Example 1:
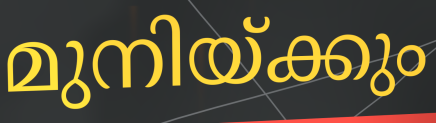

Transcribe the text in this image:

മുനിയ്ക്കും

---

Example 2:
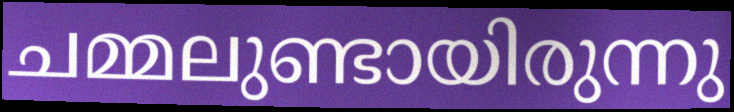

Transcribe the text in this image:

ചമ്മലുണ്ടായിരുന്നു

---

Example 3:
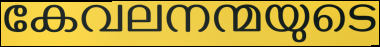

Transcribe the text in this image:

കേവലനന്മയുടെ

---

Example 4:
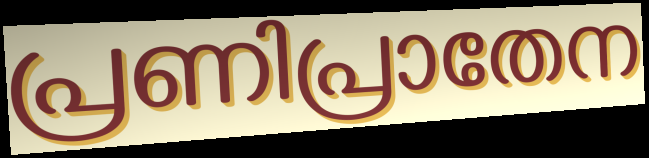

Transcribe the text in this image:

പ്രണിപ്രാതേന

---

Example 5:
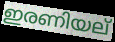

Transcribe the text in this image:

ഇരണിയല്